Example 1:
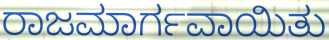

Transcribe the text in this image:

ರಾಜಮಾರ್ಗವಾಯಿತು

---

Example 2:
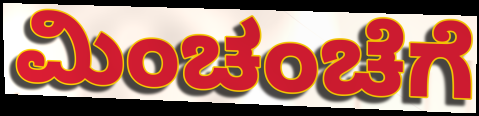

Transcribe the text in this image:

ಮಿಂಚಂಚೆಗೆ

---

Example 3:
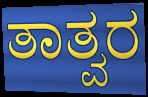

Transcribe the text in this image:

ತಾತ್ವರ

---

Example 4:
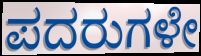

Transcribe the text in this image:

ಪದರುಗಳೇ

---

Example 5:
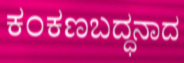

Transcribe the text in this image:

ಕಂಕಣಬದ್ಧನಾದ